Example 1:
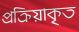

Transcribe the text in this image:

প্রক্রিয়াকৃত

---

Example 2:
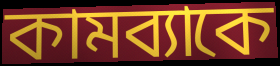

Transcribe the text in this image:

কামব্যাকে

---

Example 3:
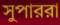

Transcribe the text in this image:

সুপাররা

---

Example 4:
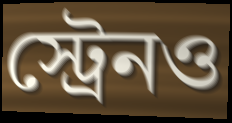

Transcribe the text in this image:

স্ট্রেনও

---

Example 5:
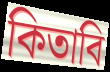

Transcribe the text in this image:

কিতাবি